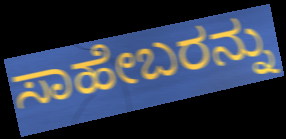
ಸಾಹೇಬರನ್ನು